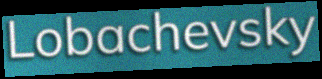
Lobachevsky